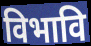
विभावि